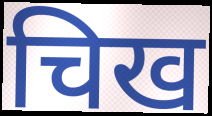
चिख